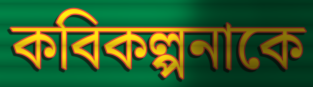
কবিকল্পনাকে